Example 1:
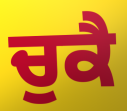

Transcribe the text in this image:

ਚੁਕੈ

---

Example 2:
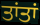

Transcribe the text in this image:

ਤਾਂਤਾਂ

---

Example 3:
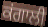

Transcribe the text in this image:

ਕਂਗਾਲੀ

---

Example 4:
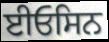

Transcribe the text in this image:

ਈਓਸਿਨ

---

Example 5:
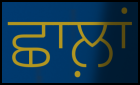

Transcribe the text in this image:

ਛਾਲ਼ਾਂ